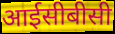
आईसीबीसी